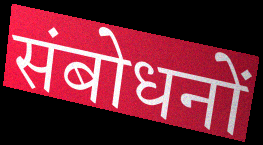
संबोधनों